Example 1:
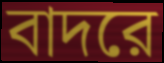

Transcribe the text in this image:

বাদরে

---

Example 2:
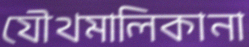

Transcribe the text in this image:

যৌথমালিকানা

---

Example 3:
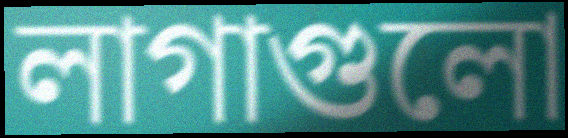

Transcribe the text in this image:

লাগাগুলো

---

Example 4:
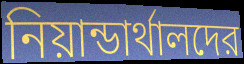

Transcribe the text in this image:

নিয়ান্ডার্থালদের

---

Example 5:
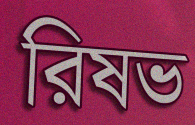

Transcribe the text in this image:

রিষভ